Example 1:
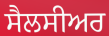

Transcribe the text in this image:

ਸੈਲਸੀਅਰ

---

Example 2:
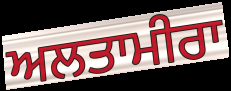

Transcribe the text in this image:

ਅਲਤਾਮੀਰਾ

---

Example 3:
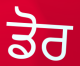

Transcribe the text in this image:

ਡੋਰ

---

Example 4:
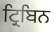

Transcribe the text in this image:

ਟ੍ਰਿਬਿਨ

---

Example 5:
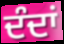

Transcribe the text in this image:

ਦੰਦਾਂ